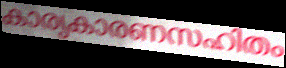
കാര്യകാരണസഹിതം